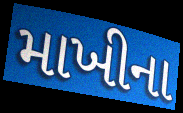
માખીના